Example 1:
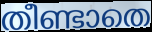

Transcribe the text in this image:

തീണ്ടാതെ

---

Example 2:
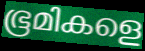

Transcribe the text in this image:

ഭൂമികളെ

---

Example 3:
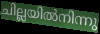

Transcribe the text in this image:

ചില്ലയിൽനിന്നു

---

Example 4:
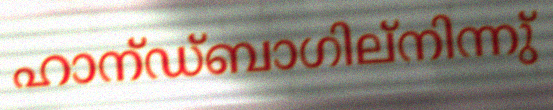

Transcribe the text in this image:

ഹാന്ഡ്ബാഗില്നിന്നു്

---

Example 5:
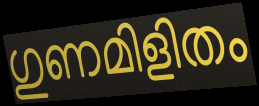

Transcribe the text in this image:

ഗുണമിളിതം